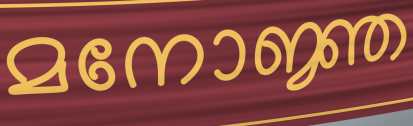
മനോജ്ഞ